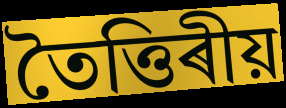
তৈত্তিৰীয়